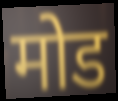
मोड